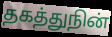
தகத்துநின்